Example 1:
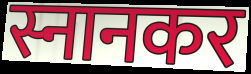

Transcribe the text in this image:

स्नानकर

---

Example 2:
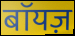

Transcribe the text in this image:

बॉयज़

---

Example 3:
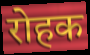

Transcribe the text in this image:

रोहक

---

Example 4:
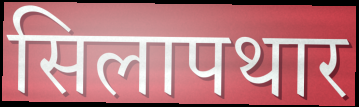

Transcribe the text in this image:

सिलापथार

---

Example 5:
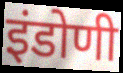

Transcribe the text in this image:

इंडोणी